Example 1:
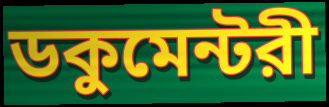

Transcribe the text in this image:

ডকুমেন্টরী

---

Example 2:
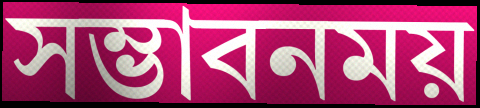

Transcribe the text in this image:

সম্ভাবনময়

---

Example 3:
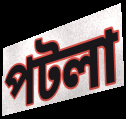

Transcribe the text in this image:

পটলা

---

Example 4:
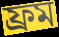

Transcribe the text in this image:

ফ্রম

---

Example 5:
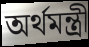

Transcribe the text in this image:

অর্থমন্ত্রী